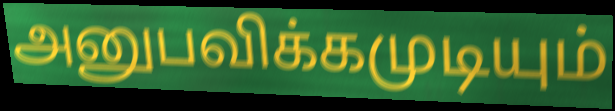
அனுபவிக்கமுடியும்